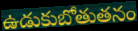
ఉడుకుబోతుతనం